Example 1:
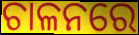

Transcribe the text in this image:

ଚାଳନରେ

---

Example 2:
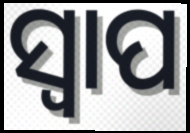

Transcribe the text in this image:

ସ୍ବାପ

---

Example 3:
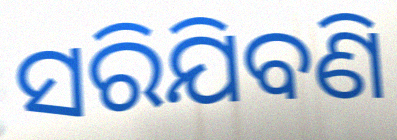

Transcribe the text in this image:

ସରିଯିବଣି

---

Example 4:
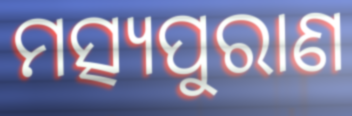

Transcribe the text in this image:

ମତ୍ସ୍ୟପୁରାଣ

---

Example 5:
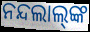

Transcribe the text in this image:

ନନ୍ଦଲାଲ୍‌ଙ୍କ